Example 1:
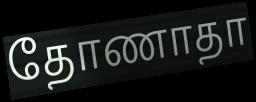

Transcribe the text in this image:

தோணாதா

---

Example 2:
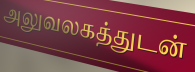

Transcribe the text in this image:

அலுவலகத்துடன்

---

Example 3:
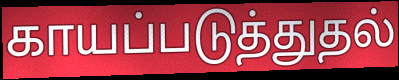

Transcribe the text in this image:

காயப்படுத்துதல்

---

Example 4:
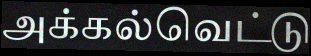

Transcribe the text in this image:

அக்கல்வெட்டு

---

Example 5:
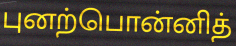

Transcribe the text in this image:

புனற்பொன்னித்